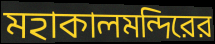
মহাকালমন্দিরের